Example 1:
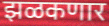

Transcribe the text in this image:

झळकणार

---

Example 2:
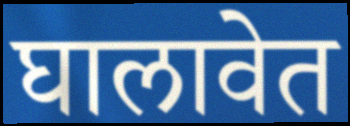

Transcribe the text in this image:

घालावेत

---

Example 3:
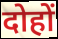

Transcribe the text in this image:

दोहों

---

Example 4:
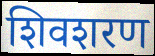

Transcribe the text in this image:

शिवशरण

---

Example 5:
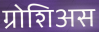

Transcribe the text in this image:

ग्रोशिअस